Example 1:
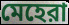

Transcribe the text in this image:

মেহেরা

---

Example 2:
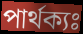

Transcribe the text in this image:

পার্থক্যঃ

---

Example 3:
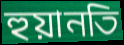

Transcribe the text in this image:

হুয়ানতি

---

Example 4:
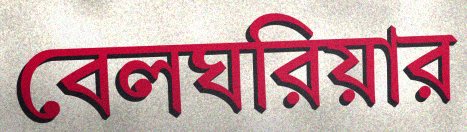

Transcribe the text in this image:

বেলঘরিয়ার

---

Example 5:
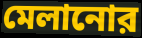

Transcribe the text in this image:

মেলানোর